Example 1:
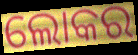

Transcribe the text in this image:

ଲୋକର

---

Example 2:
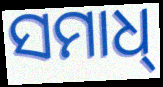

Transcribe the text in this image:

ସମାଧ୍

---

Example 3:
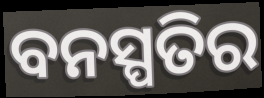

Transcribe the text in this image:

ବନସ୍ପତିର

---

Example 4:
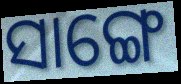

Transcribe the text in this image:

ସାଙ୍ଗେ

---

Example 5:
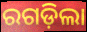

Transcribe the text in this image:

ରଗଡ଼ିଲା